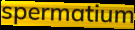
spermatium